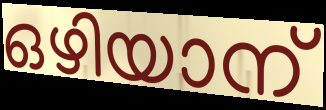
ഒഴിയാന്